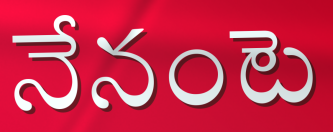
నేనంటె